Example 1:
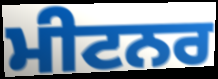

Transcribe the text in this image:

ਮੀਟਨਰ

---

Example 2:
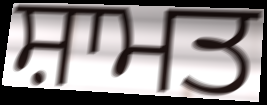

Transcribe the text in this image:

ਸ਼ਾਮਤ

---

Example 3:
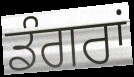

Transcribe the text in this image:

ਡੰਗਰਾਂ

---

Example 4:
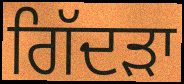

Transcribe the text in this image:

ਗਿੱਦੜਾ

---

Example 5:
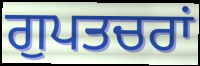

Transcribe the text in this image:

ਗੁਪਤਚਰਾਂ